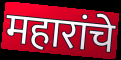
महारांचे